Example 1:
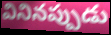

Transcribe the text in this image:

వినినప్పుడు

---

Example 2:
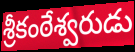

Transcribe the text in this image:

శ్రీకంఠేశ్వరుడు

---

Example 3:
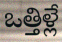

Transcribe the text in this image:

ఒత్తిళ్లే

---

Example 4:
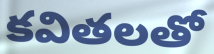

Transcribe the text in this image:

కవితలతో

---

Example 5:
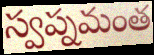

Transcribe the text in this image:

స్వప్నమంత